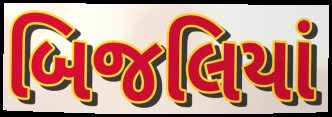
બિજલિયાં